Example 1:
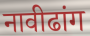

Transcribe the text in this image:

नावीढांग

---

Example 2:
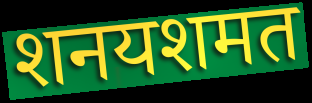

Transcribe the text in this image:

शनयशमत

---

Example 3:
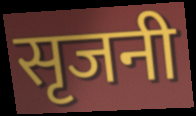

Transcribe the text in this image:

सृजनी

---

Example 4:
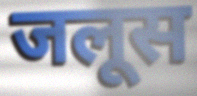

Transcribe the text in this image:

जलूस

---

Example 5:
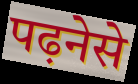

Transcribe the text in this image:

पढ़नेसे